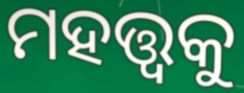
ମହତ୍ତ୍ଵକୁ